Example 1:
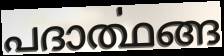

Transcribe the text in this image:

പദാൎത്ഥങ്ങ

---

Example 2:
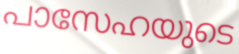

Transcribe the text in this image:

പാസേഹയുടെ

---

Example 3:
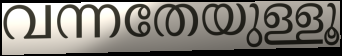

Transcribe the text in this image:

വന്നതേയുള്ളൂ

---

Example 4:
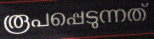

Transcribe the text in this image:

രൂപപ്പെടുന്നത്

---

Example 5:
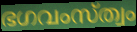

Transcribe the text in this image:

ഭഗവംസ്ത്വം